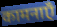
कामनाएँ